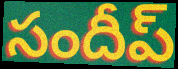
సందీప్